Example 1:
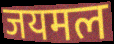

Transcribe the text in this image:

जयमल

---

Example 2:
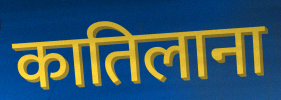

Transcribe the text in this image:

कातिलाना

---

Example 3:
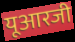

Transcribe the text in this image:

यूआरजी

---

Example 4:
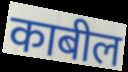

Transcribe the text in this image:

काबील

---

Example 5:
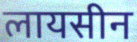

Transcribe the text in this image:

लायसीन